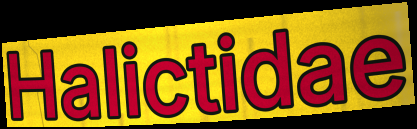
Halictidae